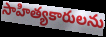
సాహిత్యకారులను